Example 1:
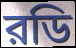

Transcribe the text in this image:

রডি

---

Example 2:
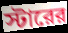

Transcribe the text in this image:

স্টারের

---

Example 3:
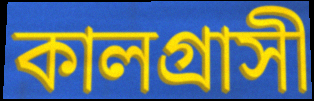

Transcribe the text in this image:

কালগ্রাসী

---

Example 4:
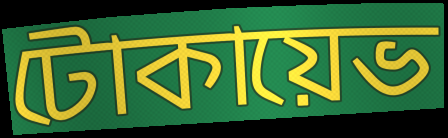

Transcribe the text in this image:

টোকায়েভ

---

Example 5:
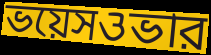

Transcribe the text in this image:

ভয়েসওভার